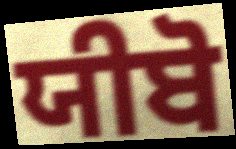
ਯੀਬੋ